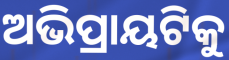
ଅଭିପ୍ରାୟଟିକୁ